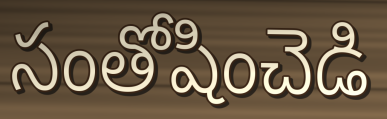
సంతోషించెడి